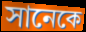
সানেকে